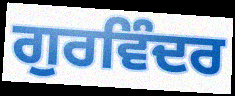
ਗੁਰਵਿੰਦਰ